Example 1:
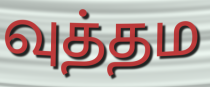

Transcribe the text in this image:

வுத்தம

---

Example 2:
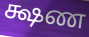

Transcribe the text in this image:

க்ஷண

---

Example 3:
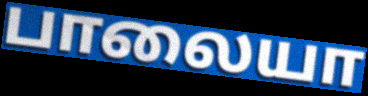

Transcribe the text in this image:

பாலையா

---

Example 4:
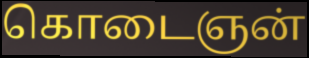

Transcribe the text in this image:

கொடைஞன்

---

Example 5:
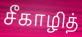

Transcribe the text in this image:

சீகாழித்